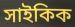
সাইকিক